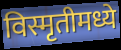
विस्मृतीमध्ये